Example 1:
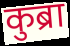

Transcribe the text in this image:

कुब्रा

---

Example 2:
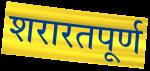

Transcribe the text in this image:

शरारतपूर्ण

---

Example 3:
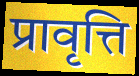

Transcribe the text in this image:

प्रावृत्ति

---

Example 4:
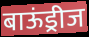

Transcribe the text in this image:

बाऊंड्रीज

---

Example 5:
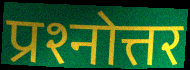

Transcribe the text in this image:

प्रश्‍नोत्तर